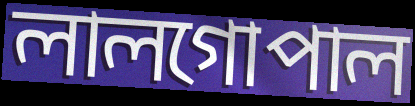
লালগোপাল